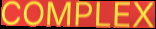
COMPLEX